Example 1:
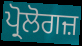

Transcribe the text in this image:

ਪ੍ਰੋਲੋਗਜ਼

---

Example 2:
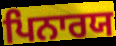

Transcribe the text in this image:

ਪਿਨਾਰਯ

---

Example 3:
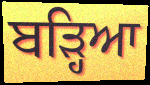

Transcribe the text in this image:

ਬੜ੍ਹਿਆ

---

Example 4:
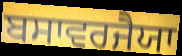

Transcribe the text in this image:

ਬਸਾਵਰਜੈਯਾ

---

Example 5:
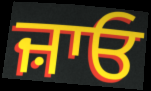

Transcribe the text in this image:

ਜ਼ਾਓ